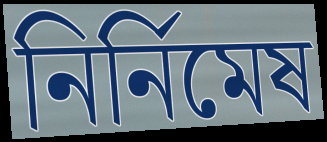
নির্নিমেষ